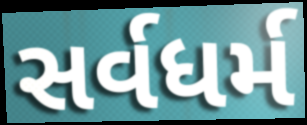
સર્વધર્મ